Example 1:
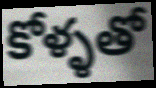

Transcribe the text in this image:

కోళ్ళతో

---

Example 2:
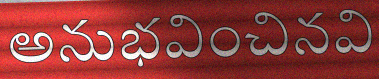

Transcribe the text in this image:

అనుభవించినవి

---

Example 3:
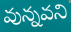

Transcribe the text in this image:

వున్నవని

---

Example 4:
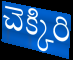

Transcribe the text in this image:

చెక్కిరి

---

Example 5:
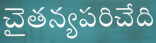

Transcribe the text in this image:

చైతన్యపరిచేది